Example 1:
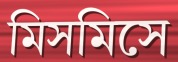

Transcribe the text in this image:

মিসমিসে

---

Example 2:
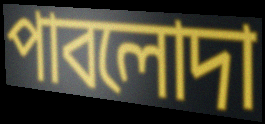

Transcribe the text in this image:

পাবলোদা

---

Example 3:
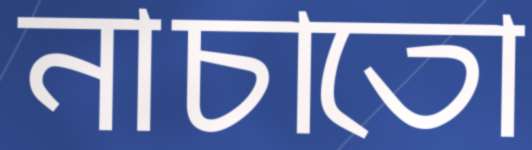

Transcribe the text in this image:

নাচাতো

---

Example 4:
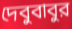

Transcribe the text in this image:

দেবুবাবুর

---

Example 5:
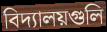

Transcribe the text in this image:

বিদ্যালয়গুলি